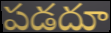
పడదూ